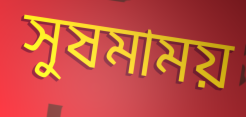
সুষমাময়